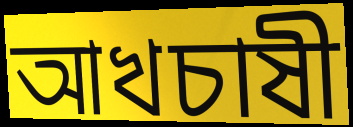
আখচাষী